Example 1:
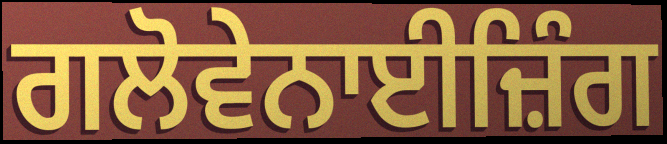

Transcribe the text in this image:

ਗਲੋਵੇਨਾਈਜ਼ਿੰਗ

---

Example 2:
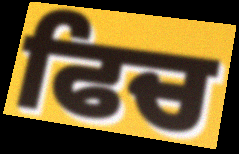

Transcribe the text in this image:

ਫਿਚ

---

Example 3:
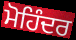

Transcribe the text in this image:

ਮੋਹਿੰਦਰ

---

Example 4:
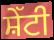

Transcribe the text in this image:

ਸ਼ੇੱਟੀ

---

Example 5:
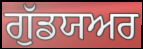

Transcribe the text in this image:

ਗੁੱਡਯਅਰ